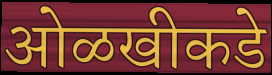
ओळखीकडे